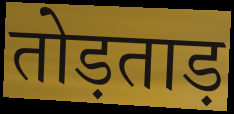
तोड़ताड़